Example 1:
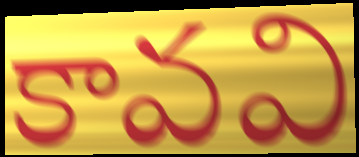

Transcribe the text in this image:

కావవి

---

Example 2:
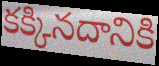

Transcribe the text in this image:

కక్కినదానికి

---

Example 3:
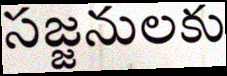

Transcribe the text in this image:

సజ్జనులకు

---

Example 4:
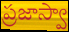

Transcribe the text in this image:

ప్రజాస్వా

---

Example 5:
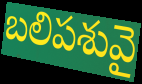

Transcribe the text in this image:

బలిపశువై